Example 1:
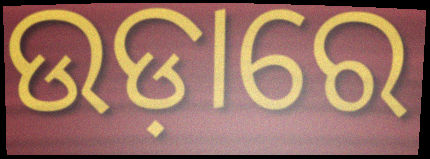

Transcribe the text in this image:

ଉଡ଼ାରେ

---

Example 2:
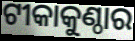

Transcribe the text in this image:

ଟୀକାକୁଣ୍ଠାର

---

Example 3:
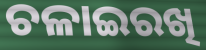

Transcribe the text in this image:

ଚଳାଇରଖି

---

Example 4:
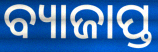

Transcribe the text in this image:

ବ୍ୟାଜାପ୍ତ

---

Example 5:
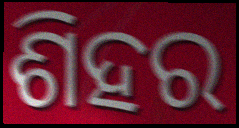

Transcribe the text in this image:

ଶିହର